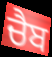
ਚੈਬ